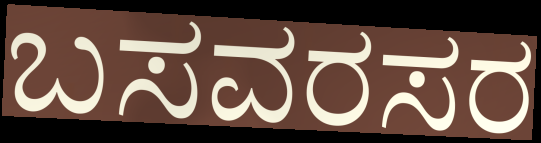
ಬಸವರಸರ